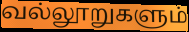
வல்லூறுகளும்